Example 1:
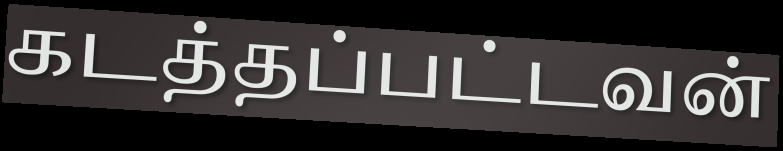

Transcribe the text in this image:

கடத்தப்பட்டவன்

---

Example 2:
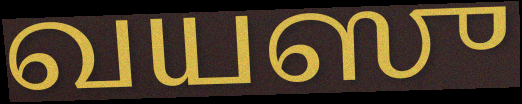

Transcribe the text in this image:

வயஸு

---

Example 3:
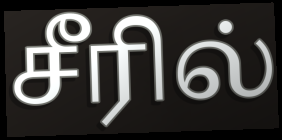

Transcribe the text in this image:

சீரில்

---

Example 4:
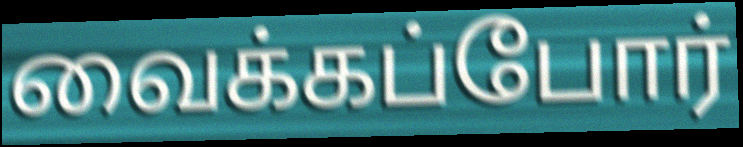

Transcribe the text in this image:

வைக்கப்போர்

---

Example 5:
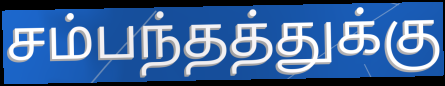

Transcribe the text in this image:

சம்பந்தத்துக்கு